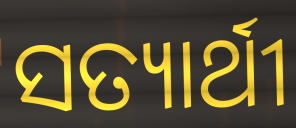
ସତ୍ୟାର୍ଥୀ